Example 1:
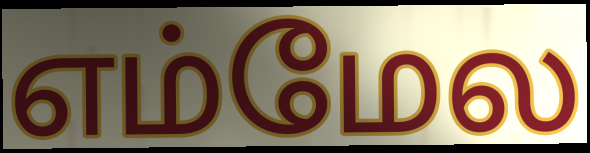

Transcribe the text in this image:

எம்மேல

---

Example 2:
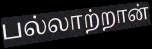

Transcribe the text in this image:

பல்லாற்றான்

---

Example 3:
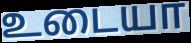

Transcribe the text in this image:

உடையா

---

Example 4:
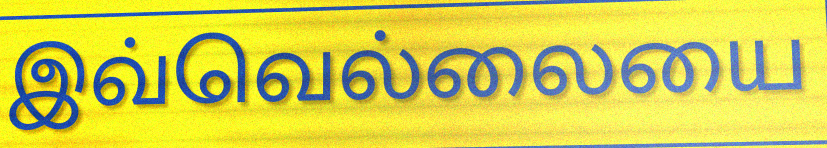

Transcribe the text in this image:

இவ்வெல்லையை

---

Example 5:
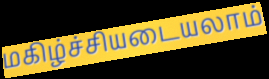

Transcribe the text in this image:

மகிழ்ச்சியடையலாம்